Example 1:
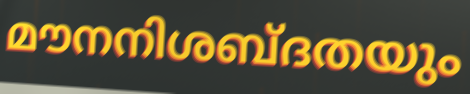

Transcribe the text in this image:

മൗനനിശബ്ദതയും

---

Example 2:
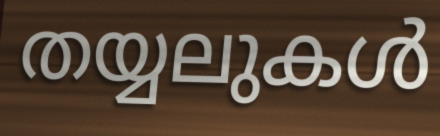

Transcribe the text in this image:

തയ്യലുകൾ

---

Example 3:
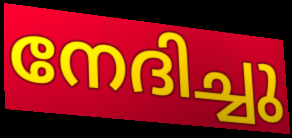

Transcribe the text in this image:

നേദിച്ചു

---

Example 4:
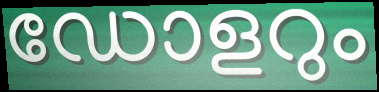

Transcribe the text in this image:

ഡോളറും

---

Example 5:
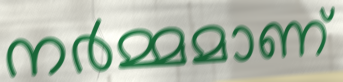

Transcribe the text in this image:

നർമ്മമാണ്